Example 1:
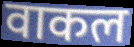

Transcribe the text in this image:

वाकल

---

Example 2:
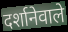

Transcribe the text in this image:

दर्शानेवाले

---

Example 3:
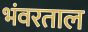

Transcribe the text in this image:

भंवरताल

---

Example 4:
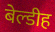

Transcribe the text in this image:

बेल्डीह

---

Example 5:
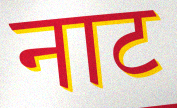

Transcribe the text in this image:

नाट